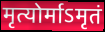
मृत्योर्माऽमृतं